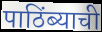
पाठिंब्याची